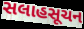
સલાહસૂચન